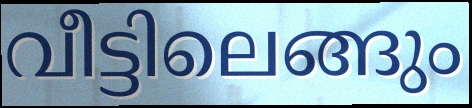
വീട്ടിലെങ്ങും